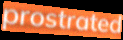
prostrated